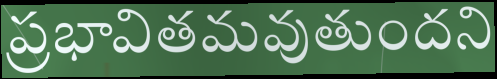
ప్రభావితమవుతుందని